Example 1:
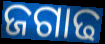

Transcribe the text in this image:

ଜଗାଢ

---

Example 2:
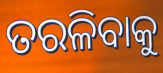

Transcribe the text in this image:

ତରଳିବାକୁ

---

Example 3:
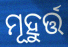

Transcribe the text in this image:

ମୂହୁର୍ତ୍ତ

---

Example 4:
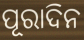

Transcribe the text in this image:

ପୂରାଦିନ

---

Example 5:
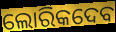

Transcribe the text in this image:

ଲୋରିକଦେବ